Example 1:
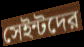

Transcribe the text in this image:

সেইন্টদের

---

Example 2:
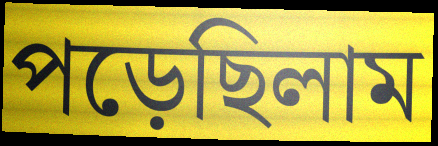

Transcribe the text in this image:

পড়েছিলাম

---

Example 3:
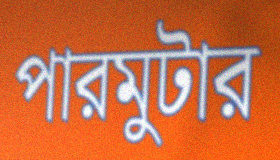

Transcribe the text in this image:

পারমুটার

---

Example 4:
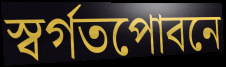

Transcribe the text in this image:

স্বর্গতপোবনে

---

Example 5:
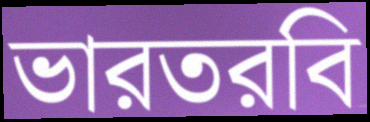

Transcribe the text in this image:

ভারতরবি